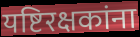
यष्टिरक्षकांना